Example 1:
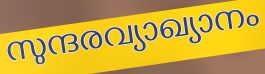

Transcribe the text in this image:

സുന്ദരവ്യാഖ്യാനം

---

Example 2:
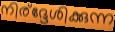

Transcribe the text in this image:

നിര്ദ്ദേശിക്കുന്ന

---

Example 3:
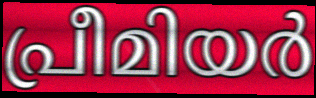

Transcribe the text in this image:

പ്രീമിയർ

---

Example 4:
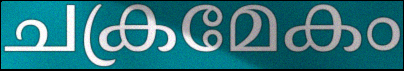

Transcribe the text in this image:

ചക്രമേകം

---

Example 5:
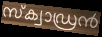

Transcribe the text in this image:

സ്ക്വാഡ്രൻ